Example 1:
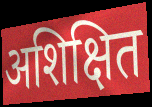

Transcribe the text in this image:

अशिक्षित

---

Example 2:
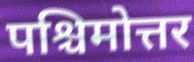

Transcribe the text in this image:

पश्चिमोत्तर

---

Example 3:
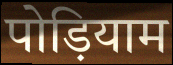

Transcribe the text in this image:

पोड़ियाम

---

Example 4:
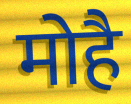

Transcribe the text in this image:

मोहै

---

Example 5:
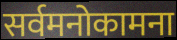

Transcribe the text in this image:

सर्वमनोकामना